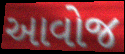
આવોજ